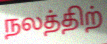
நலத்திற்